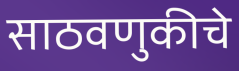
साठवणुकीचे